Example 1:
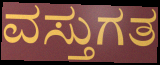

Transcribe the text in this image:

ವಸ್ತುಗತ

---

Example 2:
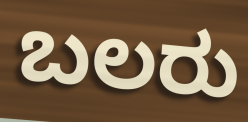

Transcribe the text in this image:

ಬಲರು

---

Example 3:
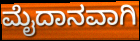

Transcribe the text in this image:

ಮೈದಾನವಾಗಿ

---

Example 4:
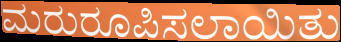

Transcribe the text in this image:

ಮರುರೂಪಿಸಲಾಯಿತು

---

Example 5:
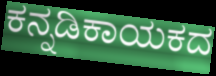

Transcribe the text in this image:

ಕನ್ನಡಿಕಾಯಕದ